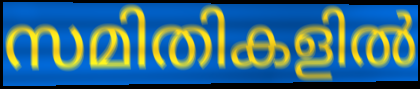
സമിതികളിൽ